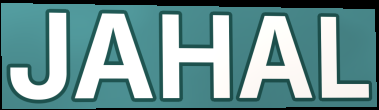
JAHAL